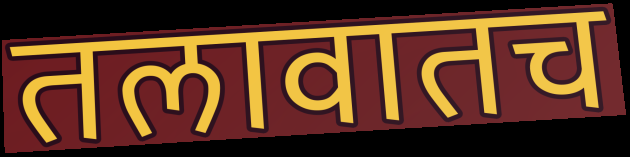
तलावातच